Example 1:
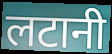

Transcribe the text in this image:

लटानी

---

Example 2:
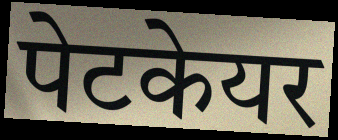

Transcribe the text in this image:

पेटकेयर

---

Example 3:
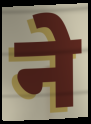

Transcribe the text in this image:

ने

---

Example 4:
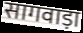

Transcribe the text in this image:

सागवाड़ा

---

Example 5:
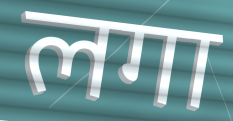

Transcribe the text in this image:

लगा